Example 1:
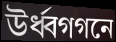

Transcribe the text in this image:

উর্ধ্বগগনে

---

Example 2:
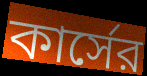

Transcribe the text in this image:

কার্সের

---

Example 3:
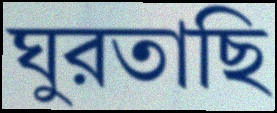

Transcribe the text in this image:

ঘুরতাছি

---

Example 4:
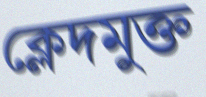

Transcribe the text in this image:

ক্লেদমুক্ত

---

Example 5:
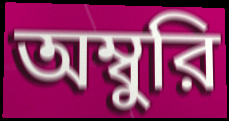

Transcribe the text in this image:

অম্বুরি